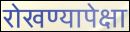
रोखण्यापेक्षा